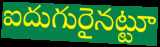
ఐదుగురైనట్టూ